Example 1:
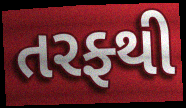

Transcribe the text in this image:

તરફ્થી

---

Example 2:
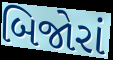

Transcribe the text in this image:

બિજોરાં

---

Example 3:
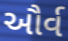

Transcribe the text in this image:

ઔર્વ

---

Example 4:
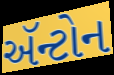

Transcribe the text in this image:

ઍન્ટોન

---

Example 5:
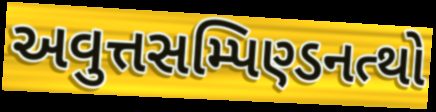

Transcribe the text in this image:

અવુત્તસમ્પિણ્ડનત્થો